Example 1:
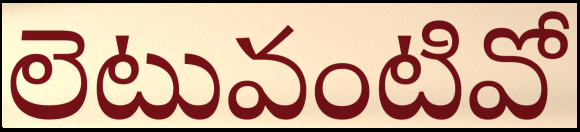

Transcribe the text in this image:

లెటువంటివో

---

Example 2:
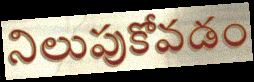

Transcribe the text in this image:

నిలుపుకోవడం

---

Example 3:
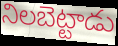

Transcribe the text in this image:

నిలబెట్టాడు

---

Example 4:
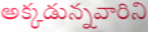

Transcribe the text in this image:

అక్కడున్నవారిని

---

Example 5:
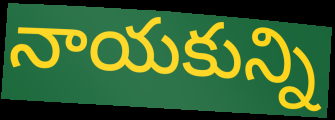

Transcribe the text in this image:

నాయకున్ని